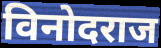
विनोदराज